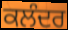
ਕਲੰਦਰ